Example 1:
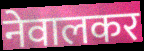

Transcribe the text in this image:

नेवालकर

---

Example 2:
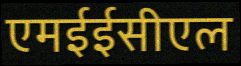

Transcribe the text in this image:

एमईईसीएल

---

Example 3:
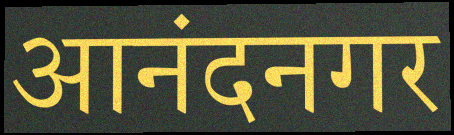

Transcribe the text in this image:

आनंदनगर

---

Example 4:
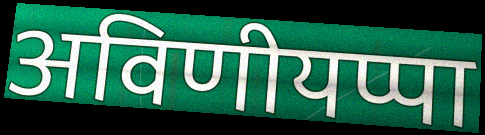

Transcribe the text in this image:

अविणीयप्पा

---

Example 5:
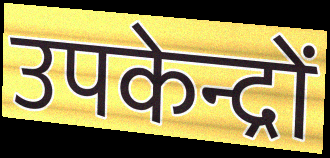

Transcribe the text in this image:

उपकेन्द्रों